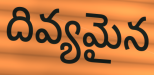
దివ్యమైన